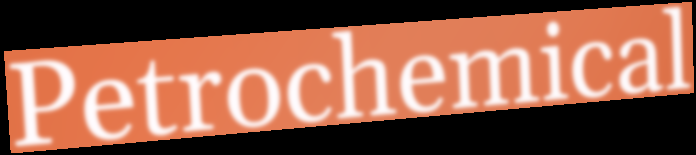
Petrochemical